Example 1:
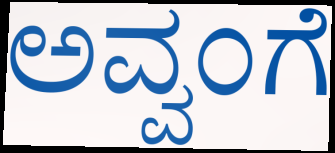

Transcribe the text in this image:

ಅವ್ವಂಗೆ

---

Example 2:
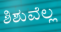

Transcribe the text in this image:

ಶಿಶುವೆಲ್ಲ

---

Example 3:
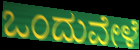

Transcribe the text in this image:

ಒಂದುವೇಳೆ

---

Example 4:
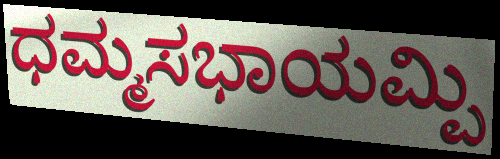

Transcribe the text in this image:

ಧಮ್ಮಸಭಾಯಮ್ಪಿ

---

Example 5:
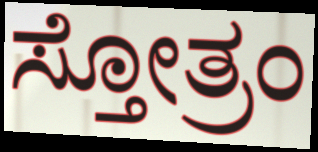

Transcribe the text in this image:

ಸ್ತೋತ್ರಂ